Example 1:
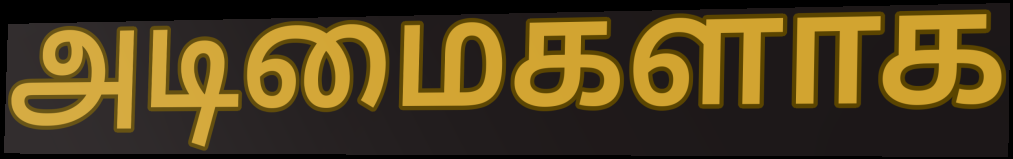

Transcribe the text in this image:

அடிமைகளாக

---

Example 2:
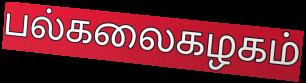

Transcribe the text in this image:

பல்கலைகழகம்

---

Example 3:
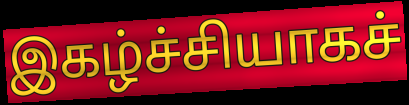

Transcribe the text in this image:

இகழ்ச்சியாகச்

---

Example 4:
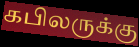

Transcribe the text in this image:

கபிலருக்கு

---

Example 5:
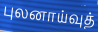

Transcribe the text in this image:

புலனாய்வுத்